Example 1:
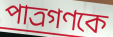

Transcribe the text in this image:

পাত্রগণকে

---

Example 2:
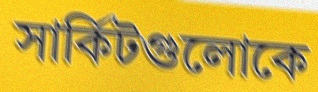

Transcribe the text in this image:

সার্কিটগুলোকে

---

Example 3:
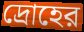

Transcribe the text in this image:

দ্রোহের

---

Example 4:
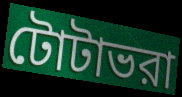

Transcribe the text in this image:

টোটাভরা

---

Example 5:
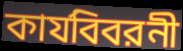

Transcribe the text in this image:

কার্যবিবরনী